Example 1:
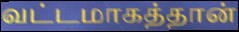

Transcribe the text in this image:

வட்டமாகத்தான்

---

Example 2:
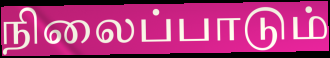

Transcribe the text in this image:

நிலைப்பாடும்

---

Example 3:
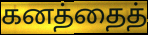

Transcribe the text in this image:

கனத்தைத்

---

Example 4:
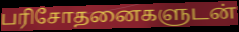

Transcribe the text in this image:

பரிசோதனைகளுடன்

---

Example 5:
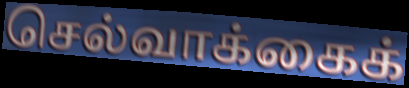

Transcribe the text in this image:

செல்வாக்கைக்